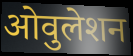
ओवुलेशन